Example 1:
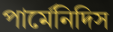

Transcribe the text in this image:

পার্মেনিদিস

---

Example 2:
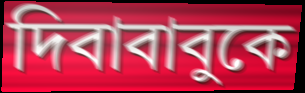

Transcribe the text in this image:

দিবাবাবুকে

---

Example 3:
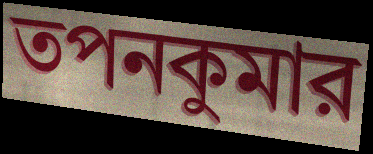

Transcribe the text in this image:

তপনকুমার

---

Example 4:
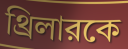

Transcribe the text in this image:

থ্রিলারকে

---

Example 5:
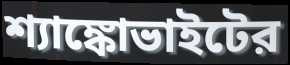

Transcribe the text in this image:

শ্যাঙ্কোভাইটের